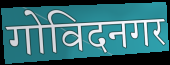
गोविदनगर